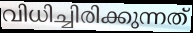
വിധിച്ചിരിക്കുന്നത്